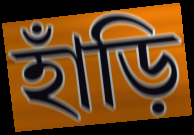
হাঁড়ি